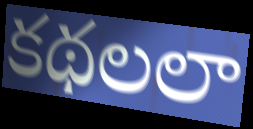
కథలలా